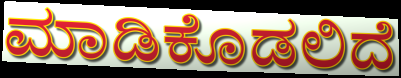
ಮಾಡಿಕೊಡಲಿದೆ